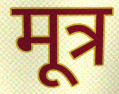
मूत्र